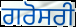
ਗਰੋਸਰੀ